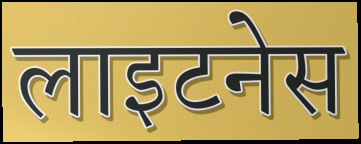
लाइटनेस